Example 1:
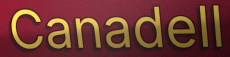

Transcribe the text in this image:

Canadell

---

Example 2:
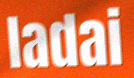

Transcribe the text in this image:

ladai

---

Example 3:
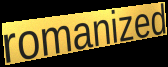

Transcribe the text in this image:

romanized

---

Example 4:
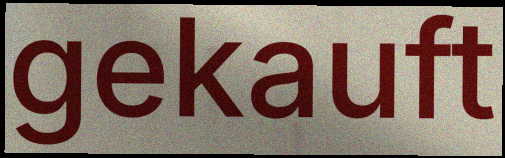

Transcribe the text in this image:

gekauft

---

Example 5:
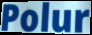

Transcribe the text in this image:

Polur